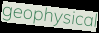
geophysical